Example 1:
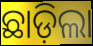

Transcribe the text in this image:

ଛାଡ଼ିଲା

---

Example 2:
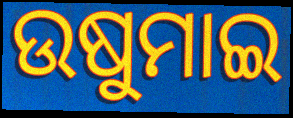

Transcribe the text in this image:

ଉଷୁମାଇ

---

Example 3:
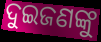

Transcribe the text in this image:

ଦୁଇଜଣଙ୍କୁ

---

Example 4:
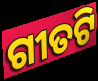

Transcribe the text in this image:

ଗୀତଟି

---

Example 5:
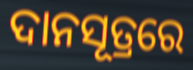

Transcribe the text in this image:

ଦାନସୂତ୍ରରେ